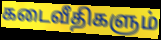
கடைவீதிகளும்